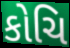
કોચિ